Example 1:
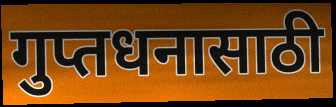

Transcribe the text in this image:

गुप्तधनासाठी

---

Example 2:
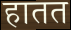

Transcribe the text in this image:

हातत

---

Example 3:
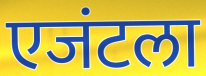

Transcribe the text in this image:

एजंटला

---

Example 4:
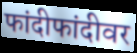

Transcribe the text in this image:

फांदीफांदीवर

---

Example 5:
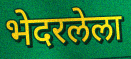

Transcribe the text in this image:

भेदरलेला